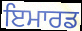
ਇਮਾਰਡ